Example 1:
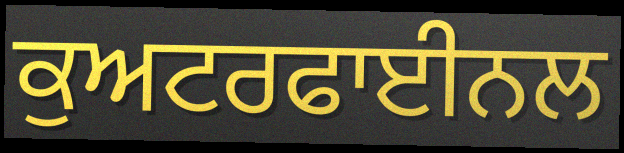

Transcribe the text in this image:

ਕੁਅਟਰਫਾਈਨਲ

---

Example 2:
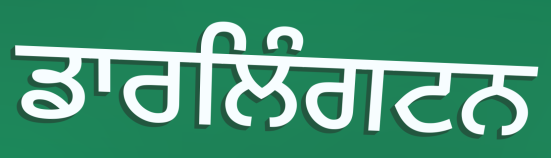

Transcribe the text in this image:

ਡਾਰਲਿੰਗਟਨ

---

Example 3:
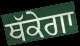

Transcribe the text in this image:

ਥੱਕੇਗਾ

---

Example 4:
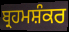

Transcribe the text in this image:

ਬ੍ਰਹਮਸ਼ੰਕਰ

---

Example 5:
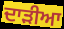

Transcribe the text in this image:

ਦਾੜੀਆ